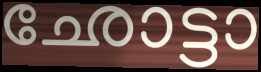
ഛോട്ടാ